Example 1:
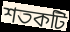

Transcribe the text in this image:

শতকটি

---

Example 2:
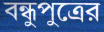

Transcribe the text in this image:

বন্ধুপুত্রের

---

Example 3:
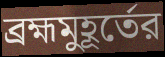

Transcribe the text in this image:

ব্রহ্মমুহূর্তের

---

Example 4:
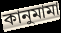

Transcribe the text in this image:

কানুমামা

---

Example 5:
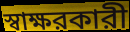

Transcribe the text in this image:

স্বাক্ষরকারী